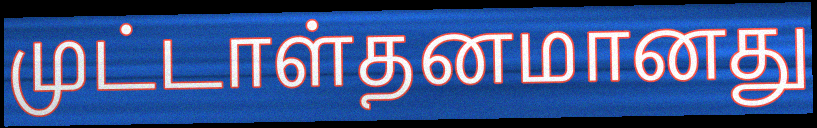
முட்டாள்தனமானது